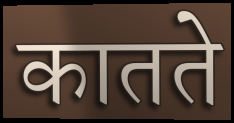
कातते